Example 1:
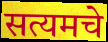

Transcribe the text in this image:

सत्यमचे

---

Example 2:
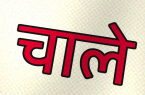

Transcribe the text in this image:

चाले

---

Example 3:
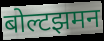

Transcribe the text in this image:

बोल्टझमन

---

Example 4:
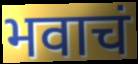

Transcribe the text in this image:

भवाचं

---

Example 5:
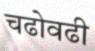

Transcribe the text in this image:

चढोवढी